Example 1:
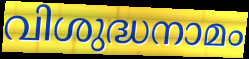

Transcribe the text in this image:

വിശുദ്ധനാമം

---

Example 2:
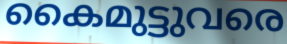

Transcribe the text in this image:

കൈമുട്ടുവരെ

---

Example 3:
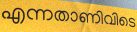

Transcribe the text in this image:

എന്നതാണിവിടെ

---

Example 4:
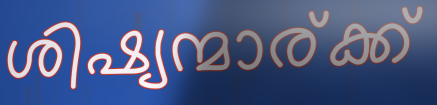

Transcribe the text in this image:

ശിഷ്യന്മാര്ക്ക്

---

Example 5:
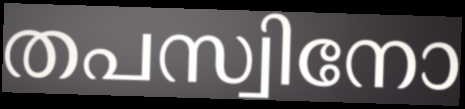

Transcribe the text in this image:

തപസ്വിനോ